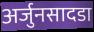
अर्जुनसादडा